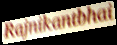
Rajnikantbhai